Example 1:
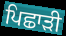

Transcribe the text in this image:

ਪਿਛਾੜੀ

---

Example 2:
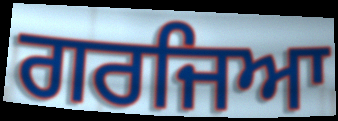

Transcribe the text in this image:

ਗਰਜਿਆ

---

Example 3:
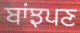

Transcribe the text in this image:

ਬਾਂਝਪਣ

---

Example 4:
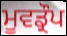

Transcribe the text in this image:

ਮੂਵਡ੍ਰੌਪ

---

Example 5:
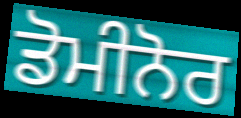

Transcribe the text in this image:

ਡੋਮੀਨੋਰ